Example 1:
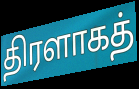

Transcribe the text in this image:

திரளாகத்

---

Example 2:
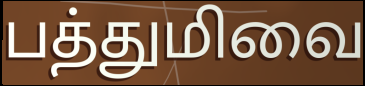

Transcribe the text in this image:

பத்துமிவை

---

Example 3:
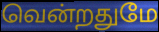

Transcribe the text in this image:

வென்றதுமே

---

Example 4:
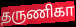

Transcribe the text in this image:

தருணிகா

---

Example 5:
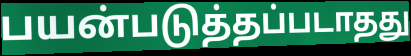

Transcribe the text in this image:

பயன்படுத்தப்படாதது